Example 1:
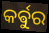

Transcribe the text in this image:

କର୍ଵୁର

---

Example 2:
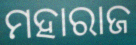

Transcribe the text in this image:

ମହାରାଜ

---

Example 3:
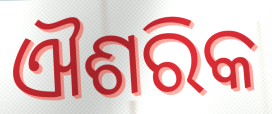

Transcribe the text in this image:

ଐଶରିକ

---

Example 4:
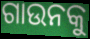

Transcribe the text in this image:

ଗାଉନକୁ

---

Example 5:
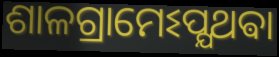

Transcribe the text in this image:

ଶାଳଗ୍ରାମେଽପ୍ଯଥଵା